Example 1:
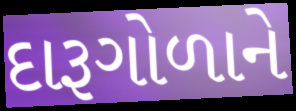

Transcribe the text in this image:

દારૂગોળાને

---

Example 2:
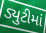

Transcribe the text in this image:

ડ્યુટીમાં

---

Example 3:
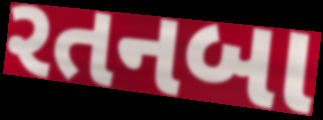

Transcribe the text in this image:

રતનબા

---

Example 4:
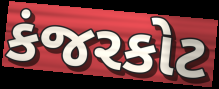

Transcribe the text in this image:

કંજરકોટ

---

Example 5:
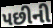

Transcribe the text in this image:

પછીની